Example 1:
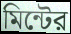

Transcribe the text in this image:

মিন্টের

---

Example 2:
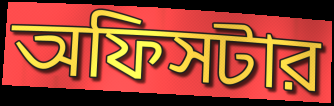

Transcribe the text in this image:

অফিসটার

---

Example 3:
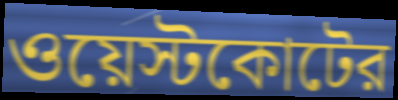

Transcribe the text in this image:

ওয়েস্টকোটের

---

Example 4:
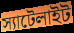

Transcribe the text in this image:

স্যাটেলাইট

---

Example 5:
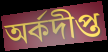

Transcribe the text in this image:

অর্কদীপ্ত